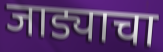
जाड्याचा